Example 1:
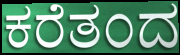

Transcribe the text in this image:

ಕರೆತಂದ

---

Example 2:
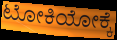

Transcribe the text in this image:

ಟೋಕಿಯೋಕ್ಕೆ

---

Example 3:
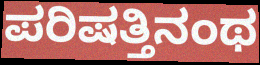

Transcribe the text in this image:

ಪರಿಷತ್ತಿನಂಥ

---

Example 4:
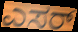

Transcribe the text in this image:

ಎಸರ್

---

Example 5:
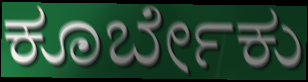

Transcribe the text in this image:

ಕೂರ್ಬೇಕು